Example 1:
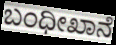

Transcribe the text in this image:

ಬಂಧೀಖಾನೆ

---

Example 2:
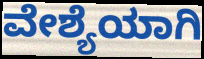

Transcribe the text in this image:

ವೇಶ್ಯೆಯಾಗಿ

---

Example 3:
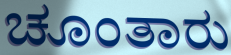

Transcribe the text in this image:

ಚೂಂತಾರು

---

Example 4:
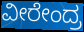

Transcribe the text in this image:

ವೀರೇಂದ್ರ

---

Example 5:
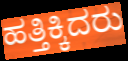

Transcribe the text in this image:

ಹತ್ತಿಕ್ಕಿದರು